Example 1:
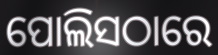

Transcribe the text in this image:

ପୋଲିସଠାରେ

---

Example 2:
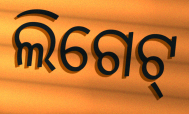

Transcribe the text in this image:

ଲିଗେଟ୍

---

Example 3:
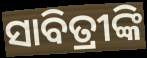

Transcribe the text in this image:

ସାବିତ୍ରୀଙ୍କି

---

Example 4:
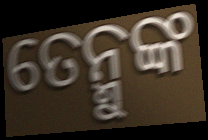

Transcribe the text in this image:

ତେନ୍ମୁଙ୍କ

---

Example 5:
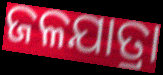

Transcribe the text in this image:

ଜଳଯାତ୍ରା